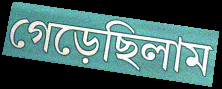
গেড়েছিলাম